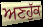
ਅਣਹੁੱਕ